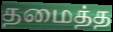
தமைத்த